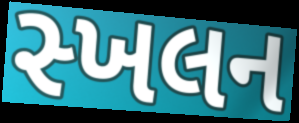
સ્ખલન